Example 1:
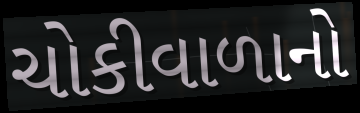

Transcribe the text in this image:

ચોકીવાળાનો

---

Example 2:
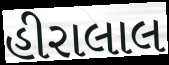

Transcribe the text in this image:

હીરાલાલ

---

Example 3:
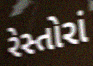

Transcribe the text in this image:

રેસ્તોરાં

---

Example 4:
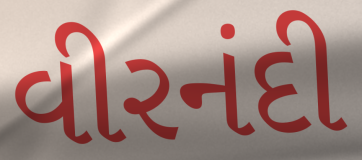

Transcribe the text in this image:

વીરનંદી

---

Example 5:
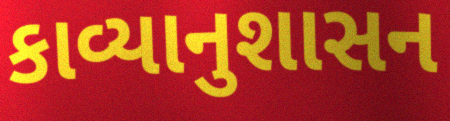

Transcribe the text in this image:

કાવ્યાનુશાસન